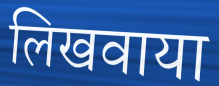
लिखवाया